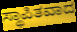
ಸ್ಥಾಪಿತವಾದ